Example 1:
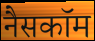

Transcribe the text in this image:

नैसकॉम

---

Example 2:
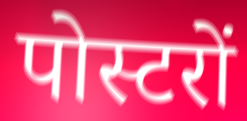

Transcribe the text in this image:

पोस्टरों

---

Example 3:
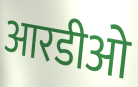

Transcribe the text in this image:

आरडीओ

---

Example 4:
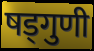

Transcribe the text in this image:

षड्गुणी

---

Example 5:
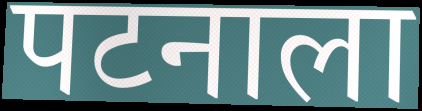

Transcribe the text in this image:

पटनाला